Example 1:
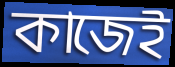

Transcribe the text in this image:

কাজেই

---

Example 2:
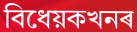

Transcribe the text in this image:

বিধেয়কখনৰ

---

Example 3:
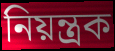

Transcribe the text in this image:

নিয়ন্ত্ৰক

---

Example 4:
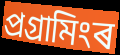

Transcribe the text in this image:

প্ৰগ্ৰামিংৰ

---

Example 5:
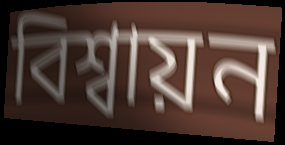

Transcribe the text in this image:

বিশ্বায়ন